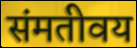
संमतीवय